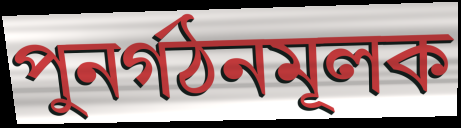
পুনর্গঠনমূলক